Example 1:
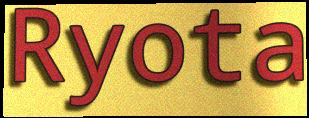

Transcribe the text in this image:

Ryota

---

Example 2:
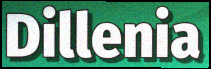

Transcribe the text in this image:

Dillenia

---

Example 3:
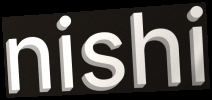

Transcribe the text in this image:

nishi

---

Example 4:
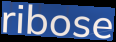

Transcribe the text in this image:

ribose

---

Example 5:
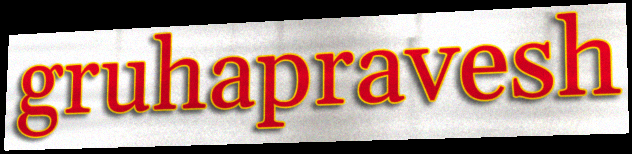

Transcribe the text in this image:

gruhapravesh